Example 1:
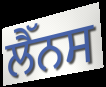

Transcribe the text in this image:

ਲੈੱਨਸ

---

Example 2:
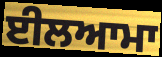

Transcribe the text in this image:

ਈਲਆਮਾ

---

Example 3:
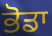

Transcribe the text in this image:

ਭੋਡਾ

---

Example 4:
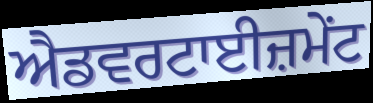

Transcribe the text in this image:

ਐਡਵਰਟਾਈਜ਼ਮੇਂਟ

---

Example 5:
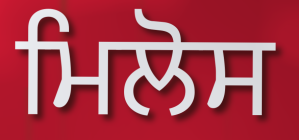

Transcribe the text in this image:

ਮਿਲੋਸ